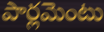
పార్లమెంటు